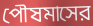
পৌষমাসের